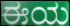
ಈಯ